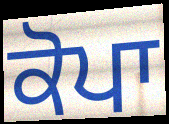
ਕੋਪਾ